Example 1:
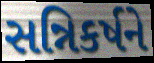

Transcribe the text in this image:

સન્નિકર્ષને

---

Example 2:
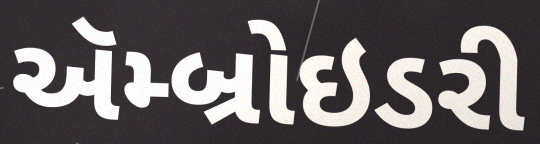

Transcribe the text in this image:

ઍમ્બ્રોઇડરી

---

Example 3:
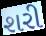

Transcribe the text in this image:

શરી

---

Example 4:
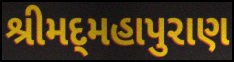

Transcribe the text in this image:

શ્રીમદ્‌મહાપુરાણ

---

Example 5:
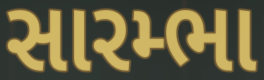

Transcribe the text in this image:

સારમ્ભા